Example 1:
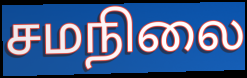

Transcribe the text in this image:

சமநிலை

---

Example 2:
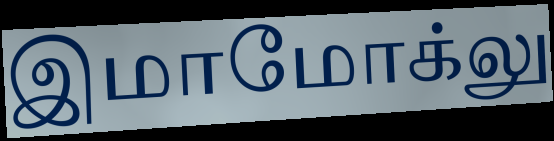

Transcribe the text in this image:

இமாமோக்லு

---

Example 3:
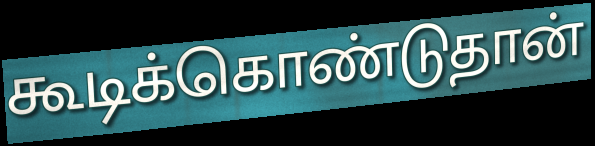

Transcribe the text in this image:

கூடிக்கொண்டுதான்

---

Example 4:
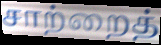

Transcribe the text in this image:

சாற்றைத்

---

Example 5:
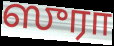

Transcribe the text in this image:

ஸுரா